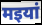
मइयां